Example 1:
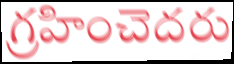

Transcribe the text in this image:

గ్రహించెదరు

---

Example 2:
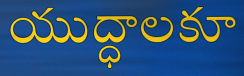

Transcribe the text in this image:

యుద్ధాలకూ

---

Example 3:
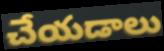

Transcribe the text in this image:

చేయడాలు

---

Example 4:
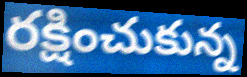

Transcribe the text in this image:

రక్షించుకున్న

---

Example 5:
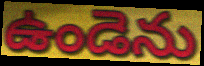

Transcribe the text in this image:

ఉండెను